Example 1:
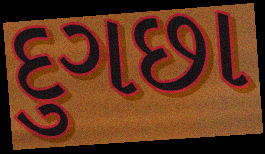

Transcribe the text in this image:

દુગછા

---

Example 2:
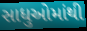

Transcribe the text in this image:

સાધુઓમાંથી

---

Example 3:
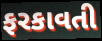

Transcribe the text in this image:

ફરકાવતી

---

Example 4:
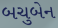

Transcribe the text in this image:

બચુબેન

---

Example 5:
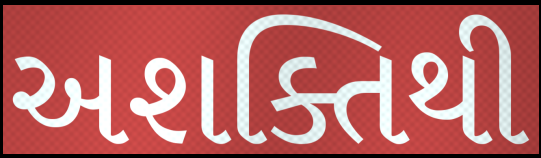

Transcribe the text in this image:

અશક્તિથી